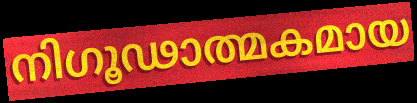
നിഗൂഢാത്മകമായ